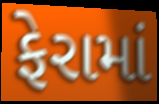
ફેરામાં